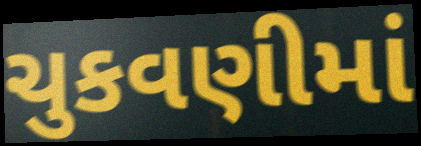
ચુકવણીમાં